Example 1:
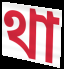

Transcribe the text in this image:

থা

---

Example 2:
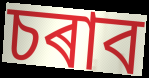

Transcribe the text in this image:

চৰাব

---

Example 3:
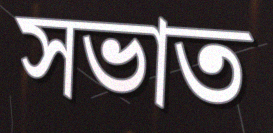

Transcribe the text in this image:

সভাত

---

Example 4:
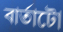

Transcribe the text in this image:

বাৰ্তাটো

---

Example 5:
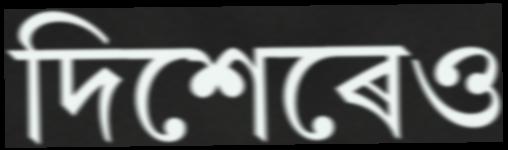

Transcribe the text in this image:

দিশেৰেও